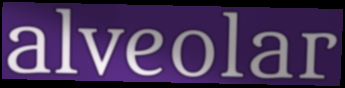
alveolar